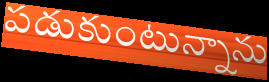
పడుకుంటున్నాను